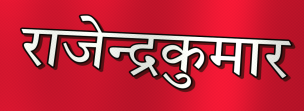
राजेन्द्रकुमार